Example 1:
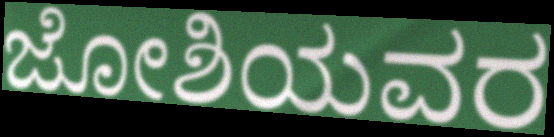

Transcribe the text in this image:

ಜೋಶಿಯವರ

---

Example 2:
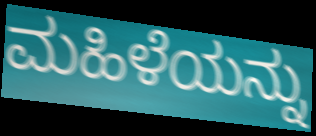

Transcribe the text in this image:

ಮಹಿಳೆಯನ್ನು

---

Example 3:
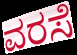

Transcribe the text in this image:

ವರಸೆ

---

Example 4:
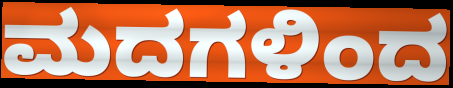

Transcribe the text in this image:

ಮದಗಳಿಂದ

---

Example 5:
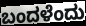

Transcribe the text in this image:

ಬಂದಳೆಂದು